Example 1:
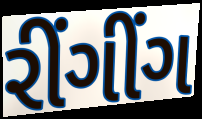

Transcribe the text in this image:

રીંગીંગ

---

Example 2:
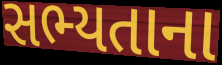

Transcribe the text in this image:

સભ્યતાના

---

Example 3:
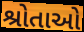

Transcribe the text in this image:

શ્રોતાઓ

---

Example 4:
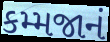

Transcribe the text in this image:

કમ્મજાનં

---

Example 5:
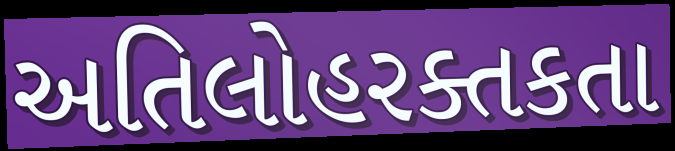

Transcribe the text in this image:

અતિલોહરક્તકતા